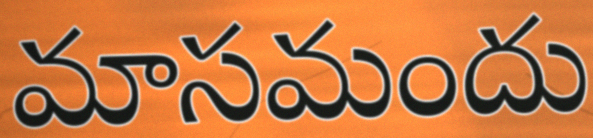
మాసమందు